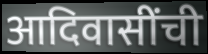
आदिवासींची